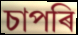
চাপৰি